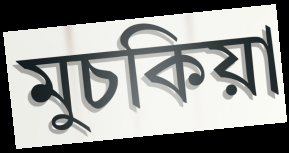
মুচকিয়া